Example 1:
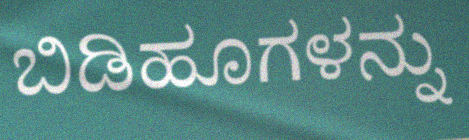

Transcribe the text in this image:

ಬಿಡಿಹೂಗಳನ್ನು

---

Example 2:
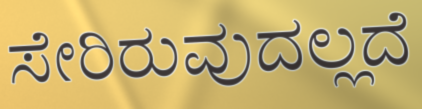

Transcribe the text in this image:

ಸೇರಿರುವುದಲ್ಲದೆ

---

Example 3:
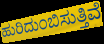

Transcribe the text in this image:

ಹುರಿದುಂಬಿಸುತ್ತಿವೆ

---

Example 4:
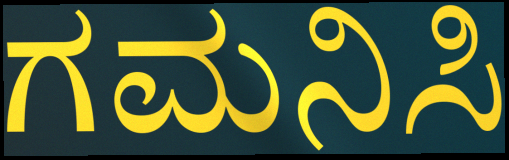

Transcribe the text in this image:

ಗಮನಿಸಿ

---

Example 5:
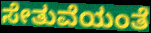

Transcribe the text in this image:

ಸೇತುವೆಯಂತೆ